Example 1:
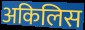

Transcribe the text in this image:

अकिलिस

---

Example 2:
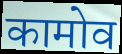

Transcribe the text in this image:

कामोव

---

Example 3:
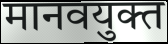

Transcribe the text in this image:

मानवयुक्त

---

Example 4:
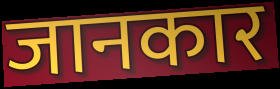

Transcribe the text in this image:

जानकार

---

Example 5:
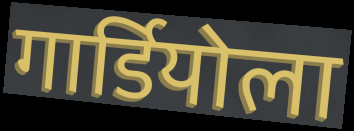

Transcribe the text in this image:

गार्डियोला